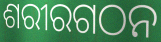
ଶରୀରଗଠନ